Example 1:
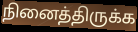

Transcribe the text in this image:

நினைத்திருக்க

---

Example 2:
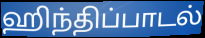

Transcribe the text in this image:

ஹிந்திப்பாடல்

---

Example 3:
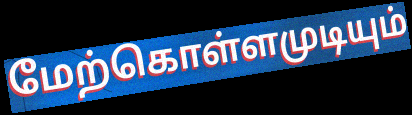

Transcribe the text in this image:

மேற்கொள்ளமுடியும்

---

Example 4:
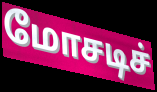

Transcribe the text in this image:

மோசடிச்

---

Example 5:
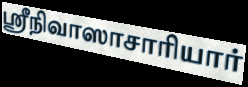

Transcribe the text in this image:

ஸ்ரீநிவாஸாசாரியார்